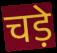
चड़े